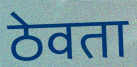
ठेवता